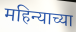
महिन्याच्या